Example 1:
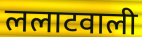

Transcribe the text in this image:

ललाटवाली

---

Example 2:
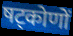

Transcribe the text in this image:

षट्कोणों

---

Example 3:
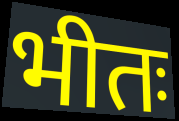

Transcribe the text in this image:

भीतः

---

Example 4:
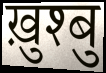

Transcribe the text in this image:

ख़ुश्बु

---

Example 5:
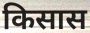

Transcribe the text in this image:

किसास